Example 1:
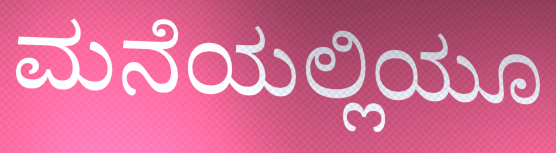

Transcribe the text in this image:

ಮನೆಯಲ್ಲಿಯೂ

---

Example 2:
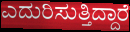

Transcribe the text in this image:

ಎದುರಿಸುತ್ತಿದ್ದಾರೆ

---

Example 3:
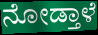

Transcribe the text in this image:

ನೋಡ್ತಾಳೆ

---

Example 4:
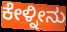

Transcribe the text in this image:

ಕೇಳ್ನೀನು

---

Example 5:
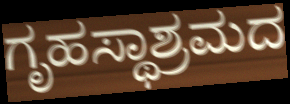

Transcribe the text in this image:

ಗೃಹಸ್ಥಾಶ್ರಮದ